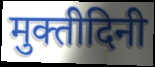
मुक्तीदिनी